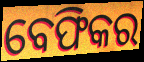
ବେଫିକର